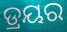
ଡ୍ରୟର